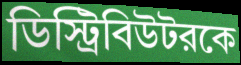
ডিস্ট্রিবিউটরকে